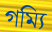
গম্যি